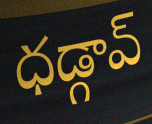
ధడ్గావ్